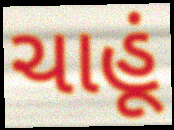
ચાહૂં